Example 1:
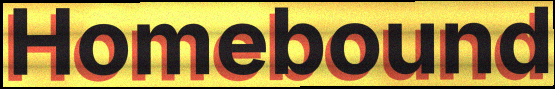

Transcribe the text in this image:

Homebound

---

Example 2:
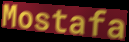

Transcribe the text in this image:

Mostafa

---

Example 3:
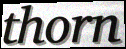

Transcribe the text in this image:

thorn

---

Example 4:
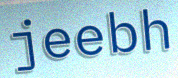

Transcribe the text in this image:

jeebh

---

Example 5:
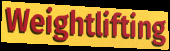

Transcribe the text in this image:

Weightlifting